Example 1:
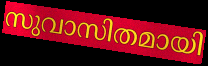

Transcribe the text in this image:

സുവാസിതമായി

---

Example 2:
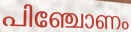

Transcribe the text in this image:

പിഞ്ചോണം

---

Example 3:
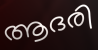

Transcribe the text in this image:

ആദരി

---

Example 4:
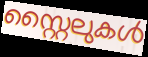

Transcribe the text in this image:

സ്റ്റൈലുകൾ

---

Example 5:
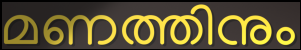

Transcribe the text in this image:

മണത്തിനും